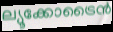
ല്യൂക്കോട്രൈൻ